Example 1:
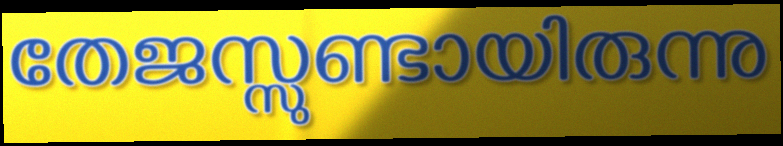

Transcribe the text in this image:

തേജസ്സുണ്ടായിരുന്നു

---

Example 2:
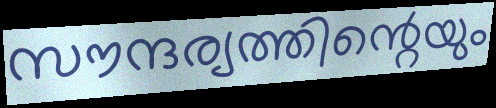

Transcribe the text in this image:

സൗന്ദര്യത്തിന്റെയും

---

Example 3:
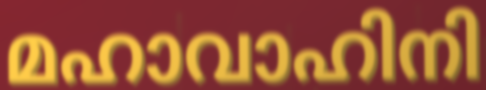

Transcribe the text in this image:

മഹാവാഹിനി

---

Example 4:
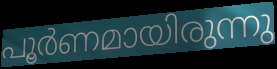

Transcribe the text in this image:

പൂർണമായിരുന്നു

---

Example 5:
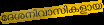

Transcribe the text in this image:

ദേശനിവാസികളായ